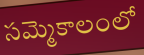
సమ్మెకాలంలో